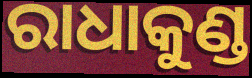
ରାଧାକୁଣ୍ଡ